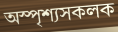
অস্পৃশ্যসকলক